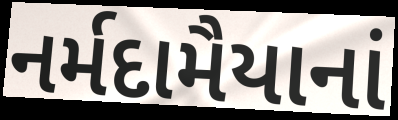
નર્મદામૈયાનાં